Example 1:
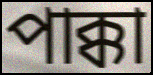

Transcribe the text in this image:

পাক্কা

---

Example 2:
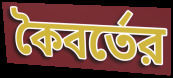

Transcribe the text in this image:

কৈবর্তের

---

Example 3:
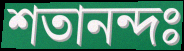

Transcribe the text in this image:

শতানন্দঃ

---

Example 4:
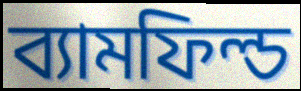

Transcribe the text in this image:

ব্যামফিল্ড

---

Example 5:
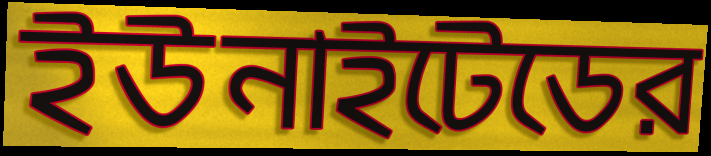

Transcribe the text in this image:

ইউনাইটেডের